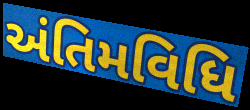
અંતિમવિધિ